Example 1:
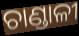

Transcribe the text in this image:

ଚାଣ୍ଡାଳୀ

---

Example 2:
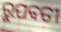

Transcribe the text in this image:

ରୁପବତୀ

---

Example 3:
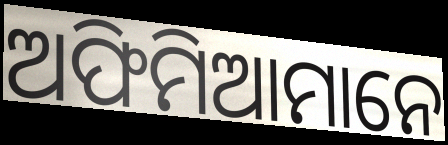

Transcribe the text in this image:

ଅଫିମିଆମାନେ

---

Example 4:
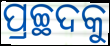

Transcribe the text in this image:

ପ୍ରଚ୍ଛଦକୁ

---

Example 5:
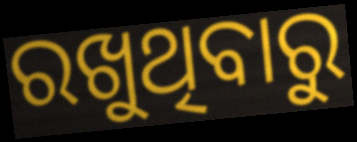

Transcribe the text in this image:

ରଖୁଥିବାରୁ